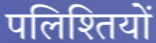
पलिश्‍तियों